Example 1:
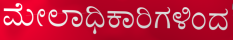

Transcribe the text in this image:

ಮೇಲಾಧಿಕಾರಿಗಳಿಂದ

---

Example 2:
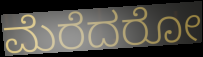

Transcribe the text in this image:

ಮೆರೆದರೋ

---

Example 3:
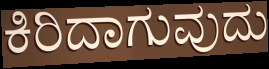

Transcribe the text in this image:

ಕಿರಿದಾಗುವುದು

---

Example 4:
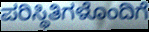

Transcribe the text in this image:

ಪರಿಸ್ಥಿತಿಗಳೊಂದಿಗೆ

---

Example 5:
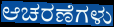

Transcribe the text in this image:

ಆಚರಣೆಗಳು